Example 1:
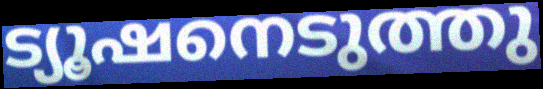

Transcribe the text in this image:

ട്യൂഷനെടുത്തു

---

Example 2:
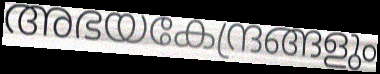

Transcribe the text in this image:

അഭയകേന്ദ്രങ്ങളും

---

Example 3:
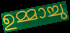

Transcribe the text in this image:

ഉമ്മാച്ചു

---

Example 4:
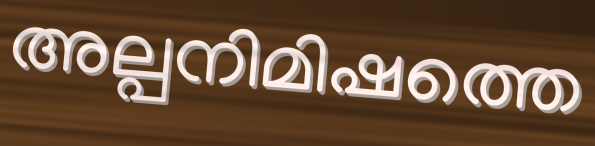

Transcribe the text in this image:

അല്പനിമിഷത്തെ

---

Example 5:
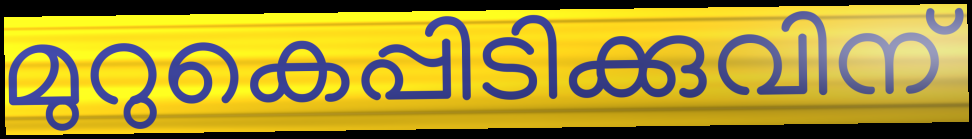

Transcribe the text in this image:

മുറുകെപ്പിടിക്കുവിന്